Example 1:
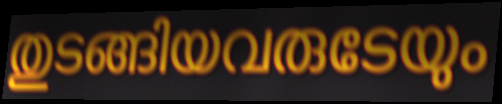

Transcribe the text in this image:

തുടങ്ങിയവരുടേയും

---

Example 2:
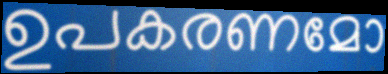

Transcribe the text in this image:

ഉപകരണമോ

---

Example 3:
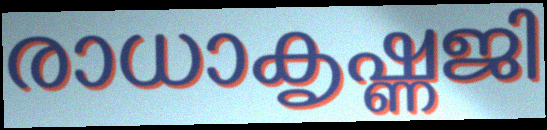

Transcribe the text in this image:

രാധാകൃഷ്ണജി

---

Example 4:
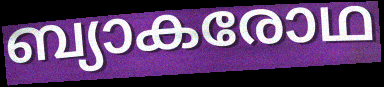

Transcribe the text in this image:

ബ്യാകരോഥ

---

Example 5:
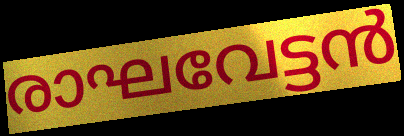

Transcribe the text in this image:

രാഘവേട്ടൻ